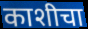
काशीचा